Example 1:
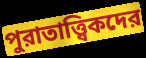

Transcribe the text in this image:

পুরাতাত্ত্বিকদের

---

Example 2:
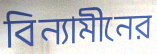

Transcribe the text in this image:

বিন্যামীনের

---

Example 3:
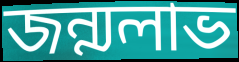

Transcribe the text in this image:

জন্মলাভ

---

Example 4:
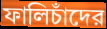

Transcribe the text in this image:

ফালিচাঁদের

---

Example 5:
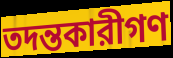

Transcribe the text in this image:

তদন্তকারীগণ